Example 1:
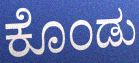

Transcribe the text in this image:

ಕೊಂಡು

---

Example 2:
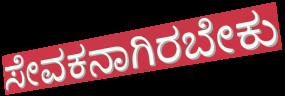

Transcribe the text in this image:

ಸೇವಕನಾಗಿರಬೇಕು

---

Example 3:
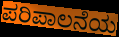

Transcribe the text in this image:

ಪರಿಪಾಲನೆಯ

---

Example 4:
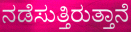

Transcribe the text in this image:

ನಡೆಸುತ್ತಿರುತ್ತಾನೆ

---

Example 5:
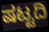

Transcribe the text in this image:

ಷಟ್ಟದಿ